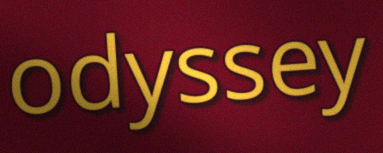
odyssey